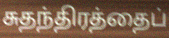
சுதந்திரத்தைப்